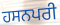
ਹਸਨਪਰੀ